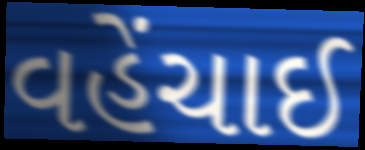
વહેંચાઈ